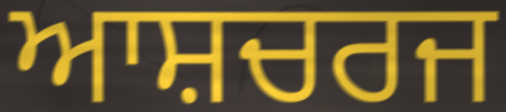
ਆਸ਼ਚਰਜ